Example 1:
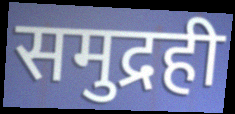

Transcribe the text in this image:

समुद्रही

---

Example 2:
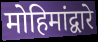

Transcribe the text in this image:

मोहिमांद्वारे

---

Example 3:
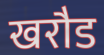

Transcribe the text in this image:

खरौड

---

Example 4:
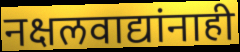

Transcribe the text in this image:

नक्षलवाद्यांनाही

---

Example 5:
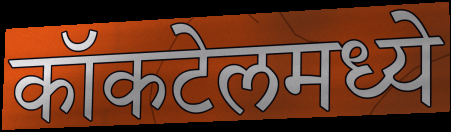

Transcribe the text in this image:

कॉकटेलमध्ये